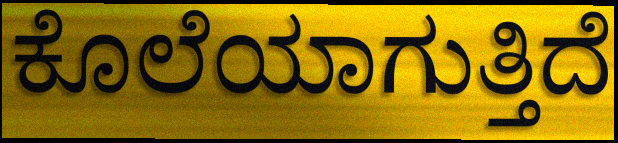
ಕೊಲೆಯಾಗುತ್ತಿದೆ